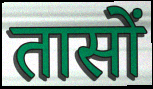
तासों